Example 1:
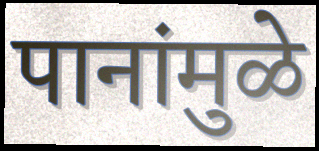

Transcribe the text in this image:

पानांमुळे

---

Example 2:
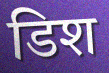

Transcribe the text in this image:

डिश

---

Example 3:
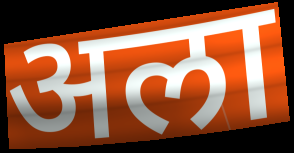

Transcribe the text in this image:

अला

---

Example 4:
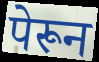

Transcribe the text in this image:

पेरून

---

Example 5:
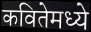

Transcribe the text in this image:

कवितेमध्ये